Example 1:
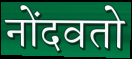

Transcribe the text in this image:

नोंदवतो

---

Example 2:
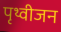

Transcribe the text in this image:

पृथ्वीजन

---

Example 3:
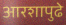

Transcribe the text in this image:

आरशापुढे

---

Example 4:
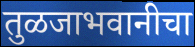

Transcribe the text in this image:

तुळजाभवानीचा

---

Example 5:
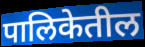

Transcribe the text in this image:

पालिकेतील